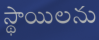
స్థాయిలను